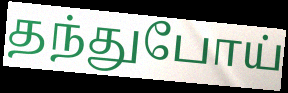
தந்துபோய்